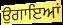
ਉਗਾਇਆਂ